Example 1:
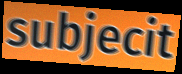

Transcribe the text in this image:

subjecit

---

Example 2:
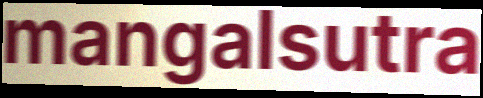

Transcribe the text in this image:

mangalsutra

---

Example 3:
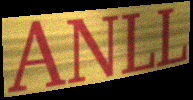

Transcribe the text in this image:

ANLL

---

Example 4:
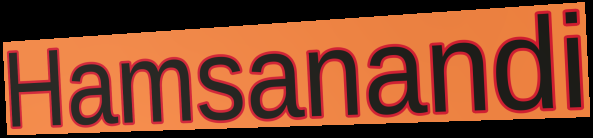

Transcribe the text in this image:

Hamsanandi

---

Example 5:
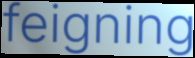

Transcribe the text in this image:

feigning